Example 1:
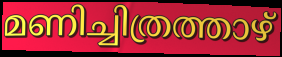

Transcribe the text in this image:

മണിച്ചിത്രത്താഴ്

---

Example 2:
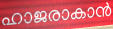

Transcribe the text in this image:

ഹാജരാകാൻ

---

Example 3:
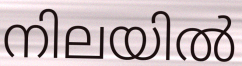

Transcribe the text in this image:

നിലയിൽ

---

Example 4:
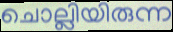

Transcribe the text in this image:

ചൊല്ലിയിരുന്ന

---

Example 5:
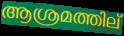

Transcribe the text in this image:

ആശ്രമത്തില്